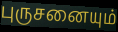
புருசனையும்